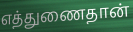
எத்துணைதான்